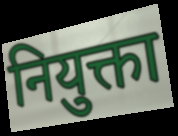
नियुक्ता